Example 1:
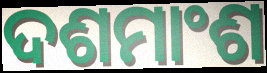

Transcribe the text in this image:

ଦଶମାଂଶ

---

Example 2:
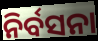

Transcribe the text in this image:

ନିର୍ବସନା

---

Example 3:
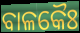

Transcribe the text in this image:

ବାଳକୈଃ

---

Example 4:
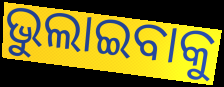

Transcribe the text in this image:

ଭୁଲାଇବାକୁ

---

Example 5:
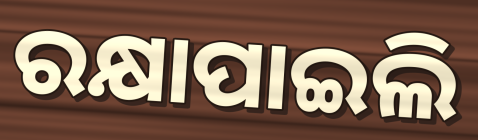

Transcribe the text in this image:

ରକ୍ଷାପାଇଲି